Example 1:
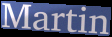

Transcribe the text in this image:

Martin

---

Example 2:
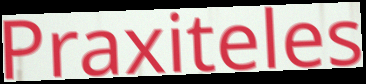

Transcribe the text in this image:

Praxiteles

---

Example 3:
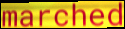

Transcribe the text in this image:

marched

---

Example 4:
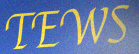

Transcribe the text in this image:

TEWS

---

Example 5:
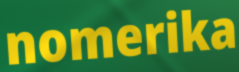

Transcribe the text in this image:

nomerika